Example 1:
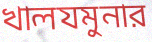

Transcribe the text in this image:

খালযমুনার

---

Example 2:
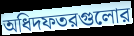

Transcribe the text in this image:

অধিদফতরগুলোর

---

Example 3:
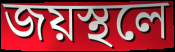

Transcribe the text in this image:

জয়স্থলে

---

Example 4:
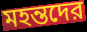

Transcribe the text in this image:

মহন্তদের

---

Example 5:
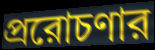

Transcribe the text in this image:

প্ররোচণার